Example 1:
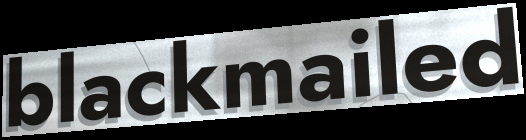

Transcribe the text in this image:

blackmailed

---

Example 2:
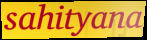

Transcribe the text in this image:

sahityana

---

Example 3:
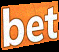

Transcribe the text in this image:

bet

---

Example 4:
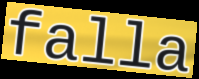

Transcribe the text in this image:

falla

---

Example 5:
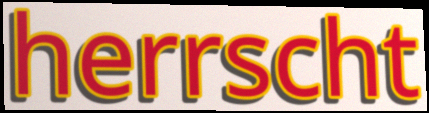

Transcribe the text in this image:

herrscht